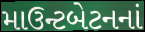
માઉન્ટબેટનનાં